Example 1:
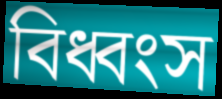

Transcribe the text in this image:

বিধ্বংস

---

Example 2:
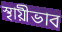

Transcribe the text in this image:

স্থায়ীভাব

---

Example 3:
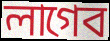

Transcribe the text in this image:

লাগেব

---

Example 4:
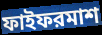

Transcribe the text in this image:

ফাইফরমাশ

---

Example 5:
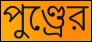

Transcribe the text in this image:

পুণ্ড্রের